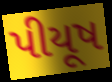
પીયૂષ